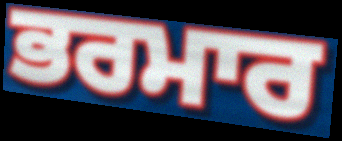
ਭਰਮਾਰ